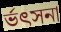
র্ভৎসনা